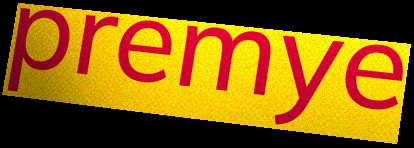
premye